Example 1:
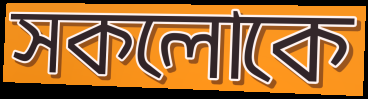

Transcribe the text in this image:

সকলোকে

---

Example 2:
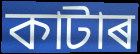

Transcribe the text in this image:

কাটাৰ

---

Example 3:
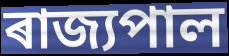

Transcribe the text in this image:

ৰাজ্যপাল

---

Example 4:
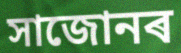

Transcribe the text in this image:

সাজোনৰ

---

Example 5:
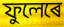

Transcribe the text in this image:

ফুলেৰে